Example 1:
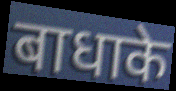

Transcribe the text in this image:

बाधाके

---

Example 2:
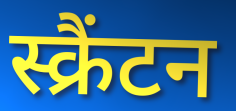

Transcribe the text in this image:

स्क्रैंटन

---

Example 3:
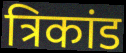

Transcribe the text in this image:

त्रिकांड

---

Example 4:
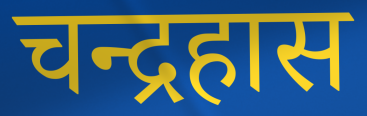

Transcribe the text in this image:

चन्द्रहास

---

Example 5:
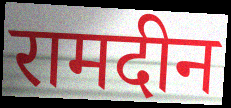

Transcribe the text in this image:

रामदीन